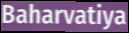
Baharvatiya